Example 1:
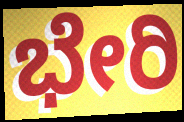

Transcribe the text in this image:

ಭೇರಿ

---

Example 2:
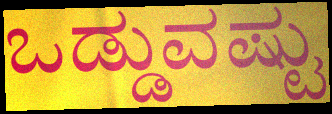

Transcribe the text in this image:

ಒಡ್ಡುವಷ್ಟು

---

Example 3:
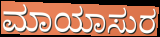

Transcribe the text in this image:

ಮಾಯಾಸುರ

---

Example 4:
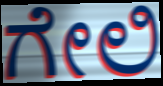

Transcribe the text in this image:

ಗೇಲಿ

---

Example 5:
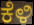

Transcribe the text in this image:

ಕೆಳಿ